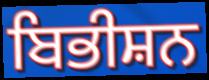
ਬਿਭੀਸ਼ਨ